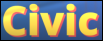
Civic